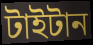
টাইটান